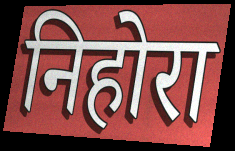
निहोरा